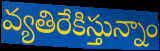
వ్యతిరేకిస్తున్నాం